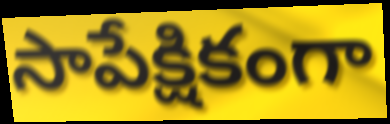
సాపేక్షికంగా